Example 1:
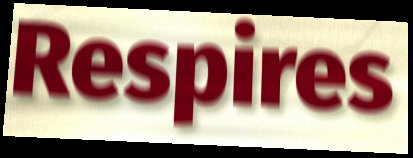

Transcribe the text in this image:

Respires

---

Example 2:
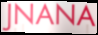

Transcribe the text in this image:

JNANA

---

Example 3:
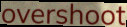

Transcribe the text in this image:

overshoot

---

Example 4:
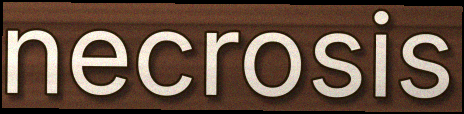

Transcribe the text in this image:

necrosis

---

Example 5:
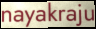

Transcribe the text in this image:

nayakraju